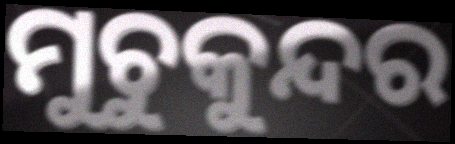
ମୁଚୁକୁନ୍ଦର